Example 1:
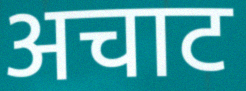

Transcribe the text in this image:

अचाट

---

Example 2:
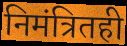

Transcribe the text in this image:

निमंत्रितही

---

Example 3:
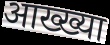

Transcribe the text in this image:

आख्ख्या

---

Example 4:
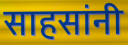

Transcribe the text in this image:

साहसांनी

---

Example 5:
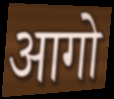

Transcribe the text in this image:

आगो